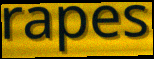
rapes